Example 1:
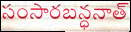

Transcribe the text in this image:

సంసారబన్ధనాత్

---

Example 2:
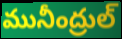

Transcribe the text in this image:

మునీంద్రుల్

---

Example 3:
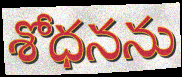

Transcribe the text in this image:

శోధనను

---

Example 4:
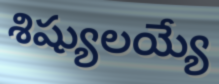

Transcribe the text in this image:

శిష్యులయ్యే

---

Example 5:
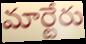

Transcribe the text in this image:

మార్టేరు